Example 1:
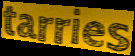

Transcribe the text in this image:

tarries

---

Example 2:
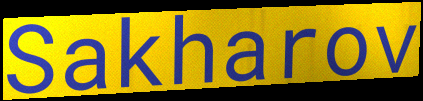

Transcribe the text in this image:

Sakharov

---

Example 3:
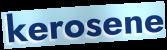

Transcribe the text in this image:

kerosene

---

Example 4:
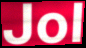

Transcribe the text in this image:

Jol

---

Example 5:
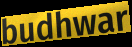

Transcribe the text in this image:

budhwar